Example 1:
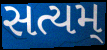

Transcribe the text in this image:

સત્યમ્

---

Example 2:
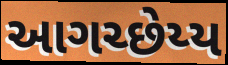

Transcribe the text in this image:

આગચ્છેય્ય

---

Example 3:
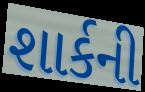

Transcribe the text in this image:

શાર્કની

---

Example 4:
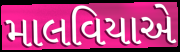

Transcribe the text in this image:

માલવિયાએ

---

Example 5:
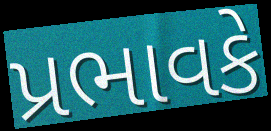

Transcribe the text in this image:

પ્રભાવકે